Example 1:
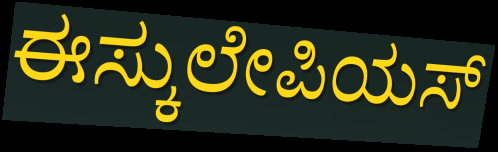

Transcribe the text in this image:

ಈಸ್ಕುಲೇಪಿಯಸ್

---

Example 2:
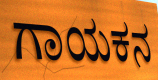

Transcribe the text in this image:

ಗಾಯಕನ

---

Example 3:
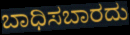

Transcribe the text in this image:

ಬಾಧಿಸಬಾರದು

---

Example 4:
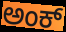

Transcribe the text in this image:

ಅಂಕ್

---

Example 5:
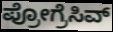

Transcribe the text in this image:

ಪ್ರೋಗ್ರೆಸಿವ್